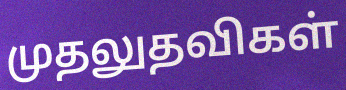
முதலுதவிகள்